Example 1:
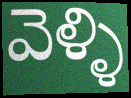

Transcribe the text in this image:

వెళ్ళి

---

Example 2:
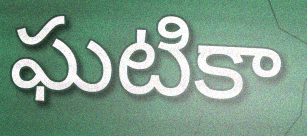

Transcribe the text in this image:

ఘటికా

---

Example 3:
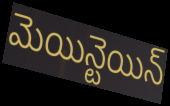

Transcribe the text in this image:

మెయిన్టెయిన్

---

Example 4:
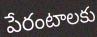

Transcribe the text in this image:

పేరంటాలకు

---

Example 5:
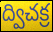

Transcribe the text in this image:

ద్విచక్ర